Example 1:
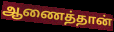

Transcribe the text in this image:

ஆணைத்தான்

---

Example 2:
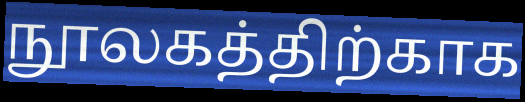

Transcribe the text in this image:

நூலகத்திற்காக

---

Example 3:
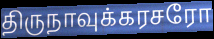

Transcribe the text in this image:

திருநாவுக்கரசரோ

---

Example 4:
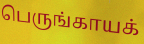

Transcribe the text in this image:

பெருங்காயக்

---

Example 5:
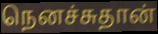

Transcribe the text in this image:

நெனச்சுதான்